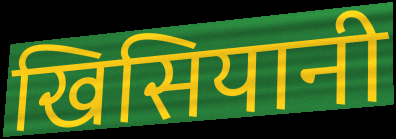
खिसियानी